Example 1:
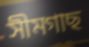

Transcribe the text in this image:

সীমগাছ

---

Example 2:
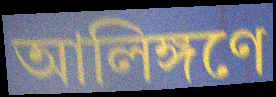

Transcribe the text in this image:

আলিঙ্গণে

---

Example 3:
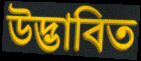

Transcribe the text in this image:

উদ্ভাবিত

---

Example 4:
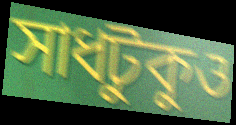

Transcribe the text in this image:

সাধটুকুও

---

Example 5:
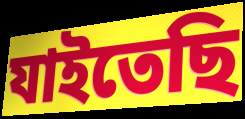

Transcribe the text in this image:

যাইতেছি